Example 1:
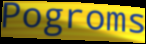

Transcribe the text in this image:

Pogroms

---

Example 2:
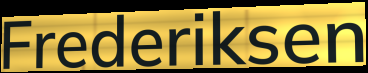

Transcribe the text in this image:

Frederiksen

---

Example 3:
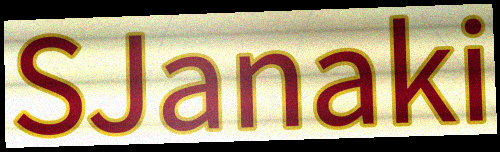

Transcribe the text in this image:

SJanaki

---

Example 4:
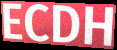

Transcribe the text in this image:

ECDH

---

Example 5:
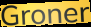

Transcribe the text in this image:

Groner